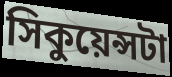
সিকুয়েন্সটা